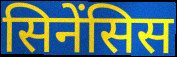
सिनेंसिस